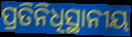
ପ୍ରତିନିଧିସ୍ଥାନୀୟ